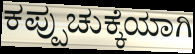
ಕಪ್ಪುಚುಕ್ಕೆಯಾಗಿ